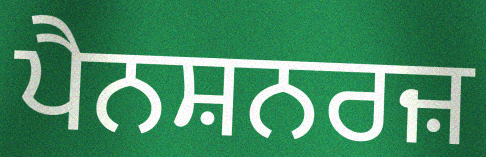
ਪੈਨਸ਼ਨਰਜ਼